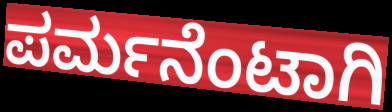
ಪರ್ಮನೆಂಟಾಗಿ